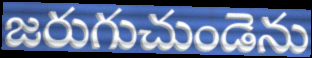
జరుగుచుండెను